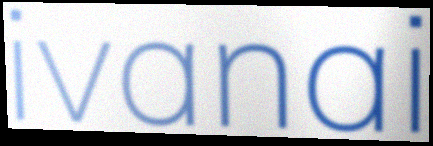
ivanai